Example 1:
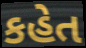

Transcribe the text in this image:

કહેત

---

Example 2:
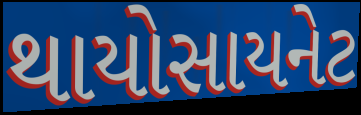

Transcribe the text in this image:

થાયોસાયનેટ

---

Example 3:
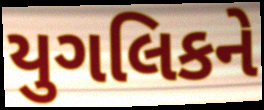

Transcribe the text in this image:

યુગલિકને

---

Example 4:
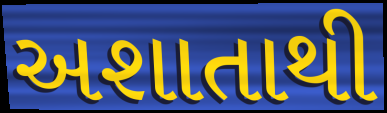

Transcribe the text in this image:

અશાતાથી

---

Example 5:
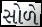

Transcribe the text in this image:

સોળે